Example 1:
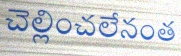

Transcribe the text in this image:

చెల్లించలేనంత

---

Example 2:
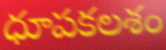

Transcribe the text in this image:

ధూపకలశం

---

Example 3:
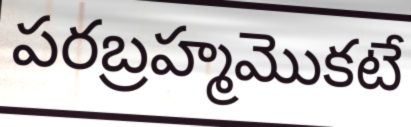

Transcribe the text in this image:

పరబ్రహ్మమొకటే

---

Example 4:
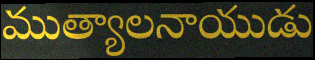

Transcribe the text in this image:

ముత్యాలనాయుడు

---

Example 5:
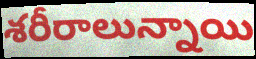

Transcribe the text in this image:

శరీరాలున్నాయి